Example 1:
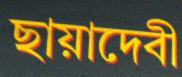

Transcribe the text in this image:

ছায়াদেবী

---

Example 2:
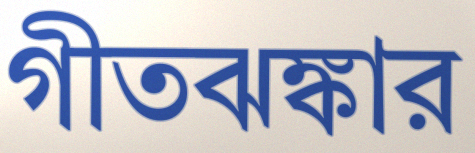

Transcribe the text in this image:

গীতঝঙ্কার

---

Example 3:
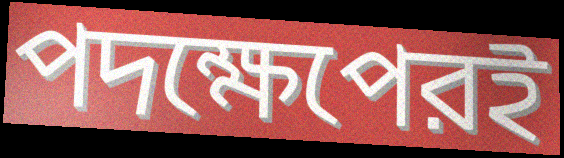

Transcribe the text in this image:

পদক্ষেপেরই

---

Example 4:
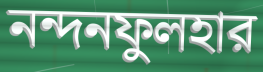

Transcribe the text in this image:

নন্দনফুলহার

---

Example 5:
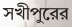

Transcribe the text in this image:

সখীপুরের